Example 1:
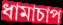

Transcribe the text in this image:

ধামাচাপ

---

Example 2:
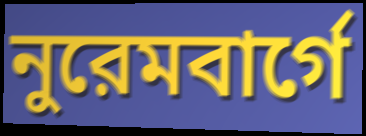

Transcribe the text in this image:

নুরেমবার্গে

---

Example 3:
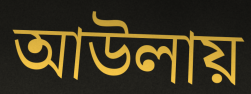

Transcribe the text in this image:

আউলায়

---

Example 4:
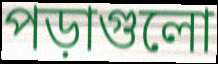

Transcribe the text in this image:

পড়াগুলো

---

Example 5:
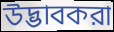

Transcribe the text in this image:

উদ্ভাবকরা